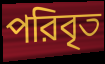
পরিবৃত